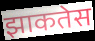
झाकतेस